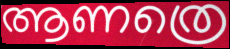
ആണത്രെ